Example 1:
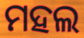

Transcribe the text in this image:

ମହଲ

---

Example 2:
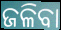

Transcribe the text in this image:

ଜଳିବା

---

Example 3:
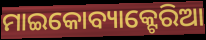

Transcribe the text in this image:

ମାଇକୋବ୍ୟାକ୍ଟେରିଆ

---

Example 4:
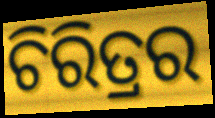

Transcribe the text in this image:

ଚିରିତ୍ରର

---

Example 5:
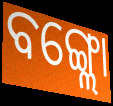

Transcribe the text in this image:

ବଙ୍ଗ୍ଲୋ